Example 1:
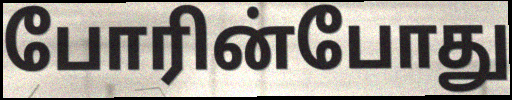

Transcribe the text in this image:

போரின்போது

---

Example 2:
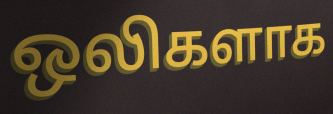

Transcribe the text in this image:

ஒலிகளாக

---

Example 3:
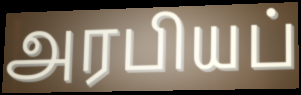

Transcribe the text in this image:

அரபியப்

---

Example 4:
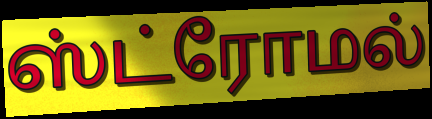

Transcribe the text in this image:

ஸ்ட்ரோமல்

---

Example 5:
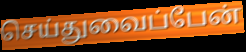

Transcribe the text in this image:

செய்துவைப்பேன்